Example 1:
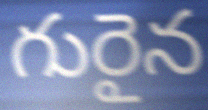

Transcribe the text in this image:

గురైన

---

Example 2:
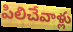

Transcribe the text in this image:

పిలిచేవాళ్లు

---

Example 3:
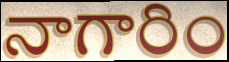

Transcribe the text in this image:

నాగారిం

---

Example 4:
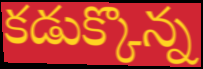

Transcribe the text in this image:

కడుక్కొన్న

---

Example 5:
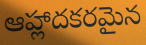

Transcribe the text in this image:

ఆహ్లాదకరమైన